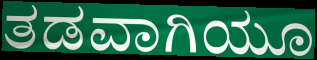
ತಡವಾಗಿಯೂ